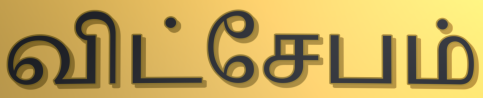
விட்சேபம்